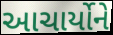
આચાર્યોને